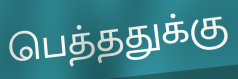
பெத்ததுக்கு